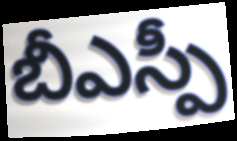
బీఎస్పీ